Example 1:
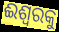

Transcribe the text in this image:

ଈଶ୍ୱରକୁ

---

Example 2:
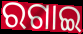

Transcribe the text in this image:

ରଗାଇ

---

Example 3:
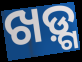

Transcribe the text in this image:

ଖଡ଼୍ଗ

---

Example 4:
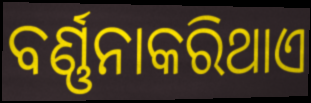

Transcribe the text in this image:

ବର୍ଣ୍ଣନାକରିଥାଏ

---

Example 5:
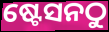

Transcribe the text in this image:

ଷ୍ଟେସନଠୁ